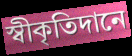
স্বীকৃতিদানে